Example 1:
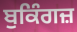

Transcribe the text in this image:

ਬੁਕਿੰਗਜ਼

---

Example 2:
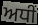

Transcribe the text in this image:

ਅਧੀਂ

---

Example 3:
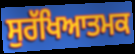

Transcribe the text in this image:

ਸੁਰੱਖਿਆਤਮਕ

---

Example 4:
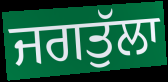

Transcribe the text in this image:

ਜਗਤੁੱਲਾ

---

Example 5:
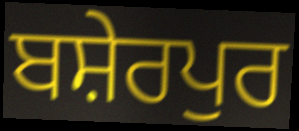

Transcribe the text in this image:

ਬਸ਼ੇਰਪੁਰ